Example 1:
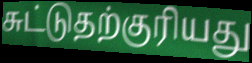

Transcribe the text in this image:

சுட்டுதற்குரியது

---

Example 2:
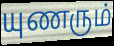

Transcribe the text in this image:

யுணரும்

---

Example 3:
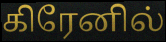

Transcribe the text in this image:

கிரேனில்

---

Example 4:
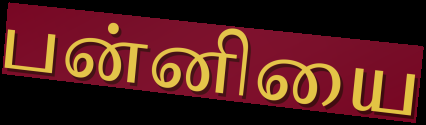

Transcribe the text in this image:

பன்னியை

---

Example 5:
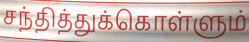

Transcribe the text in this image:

சந்தித்துக்கொள்ளும்